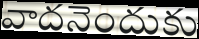
వాదనెందుకు